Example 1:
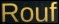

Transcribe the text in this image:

Rouf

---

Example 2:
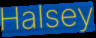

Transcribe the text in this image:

Halsey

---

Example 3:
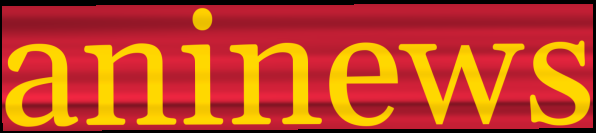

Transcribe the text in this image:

aninews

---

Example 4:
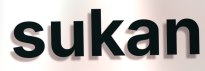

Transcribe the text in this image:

sukan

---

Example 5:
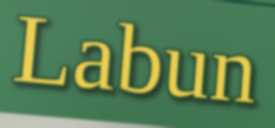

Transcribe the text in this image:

Labun